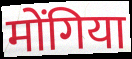
मोंगिया